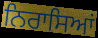
ਨਿਰਾਸਿਆਂ